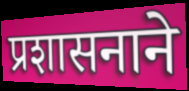
प्रशासनाने